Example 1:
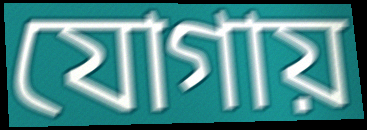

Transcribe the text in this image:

যোগায়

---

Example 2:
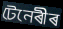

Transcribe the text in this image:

টেনেৰীৰ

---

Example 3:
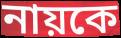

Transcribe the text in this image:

নায়কে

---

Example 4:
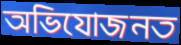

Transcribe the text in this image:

অভিযোজনত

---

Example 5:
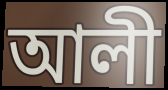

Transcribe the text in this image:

আলী